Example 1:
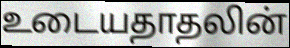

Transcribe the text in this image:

உடையதாதலின்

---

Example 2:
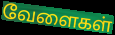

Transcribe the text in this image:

வேளைகள்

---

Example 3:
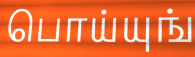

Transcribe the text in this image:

பொய்யுங்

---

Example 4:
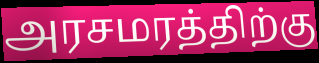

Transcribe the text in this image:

அரசமரத்திற்கு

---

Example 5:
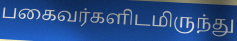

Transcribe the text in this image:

பகைவர்களிடமிருந்து